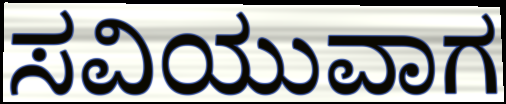
ಸವಿಯುವಾಗ